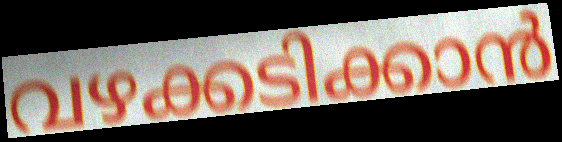
വഴക്കടിക്കാൻ